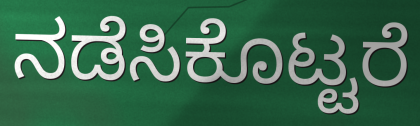
ನಡೆಸಿಕೊಟ್ಟರೆ